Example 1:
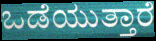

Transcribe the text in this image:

ಒಡೆಯುತ್ತಾರೆ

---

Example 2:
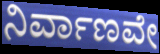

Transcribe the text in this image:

ನಿರ್ವಾಣವೇ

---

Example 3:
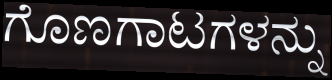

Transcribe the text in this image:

ಗೊಣಗಾಟಗಳನ್ನು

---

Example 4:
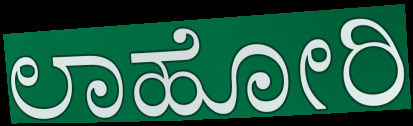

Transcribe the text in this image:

ಲಾಹೋರಿ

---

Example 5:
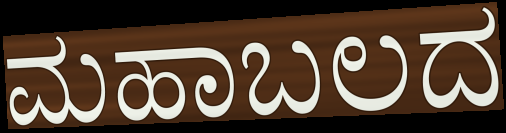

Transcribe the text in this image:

ಮಹಾಬಲದ